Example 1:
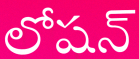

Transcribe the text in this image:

లోషన్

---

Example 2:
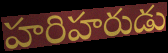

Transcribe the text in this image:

హరిహరుడు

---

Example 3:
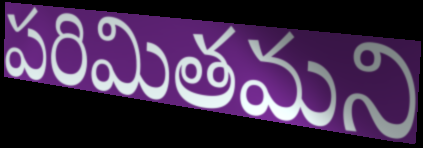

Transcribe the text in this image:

పరిమితమని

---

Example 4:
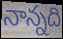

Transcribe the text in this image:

నాన్నది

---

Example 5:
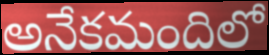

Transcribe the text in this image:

అనేకమందిలో